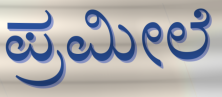
ಪ್ರಮೀಲೆ